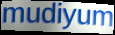
mudiyum